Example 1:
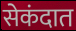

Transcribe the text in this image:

सेकंदात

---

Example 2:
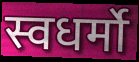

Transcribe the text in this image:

स्वधर्मो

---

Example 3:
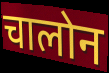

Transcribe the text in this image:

चालोन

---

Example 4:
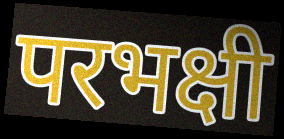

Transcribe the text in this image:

परभक्षी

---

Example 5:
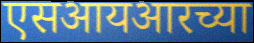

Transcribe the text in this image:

एसआयआरच्या